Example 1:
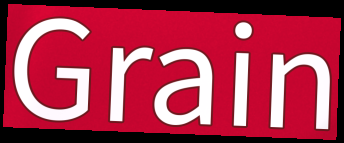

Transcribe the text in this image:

Grain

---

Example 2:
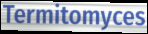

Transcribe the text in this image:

Termitomyces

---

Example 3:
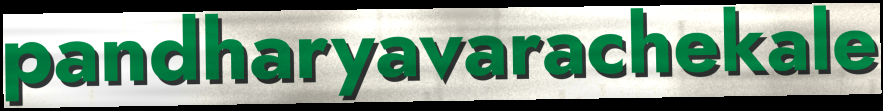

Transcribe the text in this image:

pandharyavarachekale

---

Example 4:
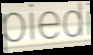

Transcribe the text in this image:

piedi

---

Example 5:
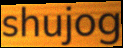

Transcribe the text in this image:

shujog